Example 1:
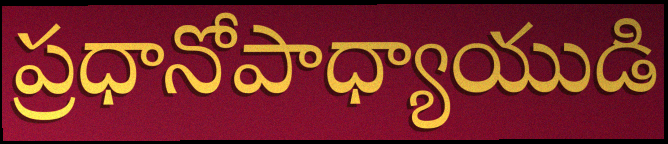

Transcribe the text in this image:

ప్రధానోపాధ్యాయుడి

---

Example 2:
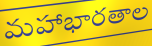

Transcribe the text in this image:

మహాభారతాల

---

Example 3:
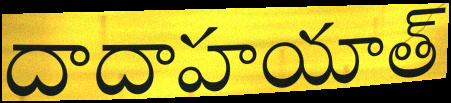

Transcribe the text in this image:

దాదాహయాత్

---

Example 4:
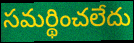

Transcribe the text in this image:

సమర్థించలేదు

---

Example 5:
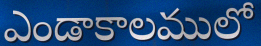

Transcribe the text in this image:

ఎండాకాలములో